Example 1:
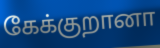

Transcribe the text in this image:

கேக்குறானா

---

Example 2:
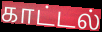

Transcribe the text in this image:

காட்டல்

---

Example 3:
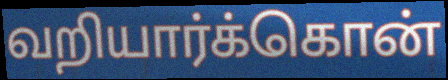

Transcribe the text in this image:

வறியார்க்கொன்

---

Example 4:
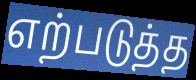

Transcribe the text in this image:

எற்படுத்த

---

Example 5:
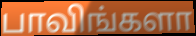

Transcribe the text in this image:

பாவிங்களா